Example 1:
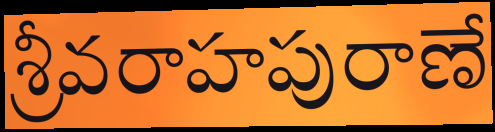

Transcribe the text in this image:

శ్రీవరాహపురాణే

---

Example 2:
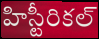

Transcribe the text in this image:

హిస్టీరికల్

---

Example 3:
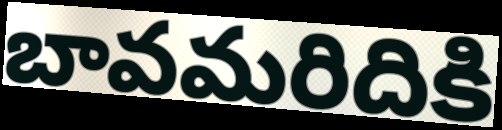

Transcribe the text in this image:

బావమరిదికి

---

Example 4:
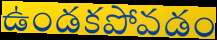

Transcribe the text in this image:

ఉండకపోవడం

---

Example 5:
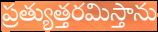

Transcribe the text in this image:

ప్రత్యుత్తరమిస్తాను